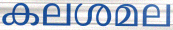
കലശമല